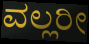
ವಲ್ಲರೀ